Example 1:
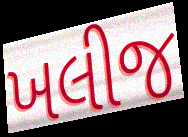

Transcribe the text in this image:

ખલીજ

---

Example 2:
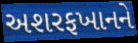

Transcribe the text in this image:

અશરફખાનને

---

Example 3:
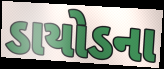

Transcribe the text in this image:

ડાયોડના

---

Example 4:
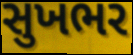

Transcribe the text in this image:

સુખભર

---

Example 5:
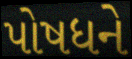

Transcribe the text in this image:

પોષધને